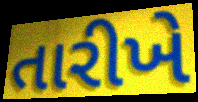
તારીખે